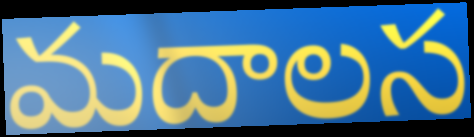
మదాలస